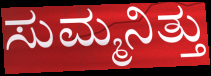
ಸುಮ್ಮನಿತ್ತು